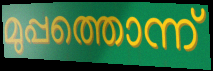
മുപ്പത്തൊന്ന്